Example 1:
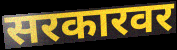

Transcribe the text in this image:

सरकारवर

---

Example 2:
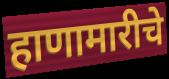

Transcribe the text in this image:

हाणामारीचे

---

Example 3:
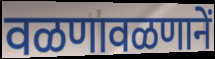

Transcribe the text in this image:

वळणावळणानें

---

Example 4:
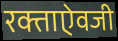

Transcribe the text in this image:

रक्ताऐवजी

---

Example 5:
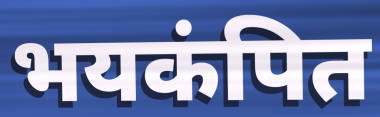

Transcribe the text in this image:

भयकंपित